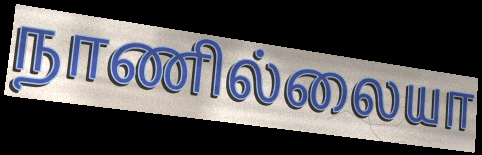
நாணில்லையா